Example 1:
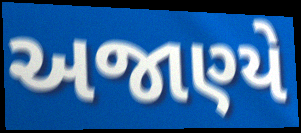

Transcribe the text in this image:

અજાણ્યે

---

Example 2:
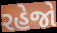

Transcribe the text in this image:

રહેજો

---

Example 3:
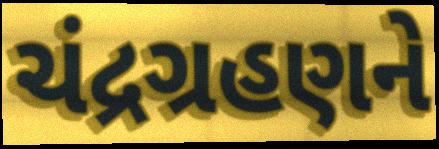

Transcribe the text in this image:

ચંદ્રગ્રહણને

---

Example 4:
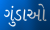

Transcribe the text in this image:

ગુંડાઓ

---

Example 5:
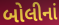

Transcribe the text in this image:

બોલીનાં